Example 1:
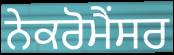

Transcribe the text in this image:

ਨੇਕਰੋਮੈਂਸਰ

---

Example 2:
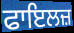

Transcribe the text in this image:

ਫਾਇਲਜ਼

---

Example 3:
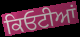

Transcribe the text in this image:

ਕਿਓਟੀਆਂ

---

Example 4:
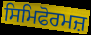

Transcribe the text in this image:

ਸਿਮਿਫੋਰਮਜ਼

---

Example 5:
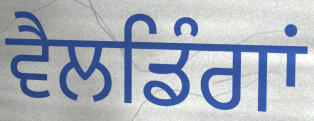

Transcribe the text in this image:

ਵੈਲਡਿੰਗਾਂ